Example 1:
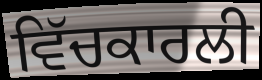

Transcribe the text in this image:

ਵਿੱਚਕਾਰਲੀ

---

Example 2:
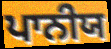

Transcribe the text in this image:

ਪਾਨੀਯ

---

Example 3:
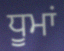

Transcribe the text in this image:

ਧੂਮਾਂ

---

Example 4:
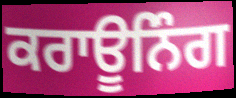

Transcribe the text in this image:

ਕਰਾਊਨਿੰਗ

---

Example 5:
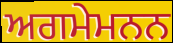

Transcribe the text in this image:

ਅਗਮੇਮਨਨ